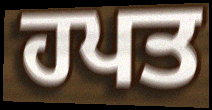
ਹਪਤ